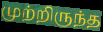
முற்றிருந்த